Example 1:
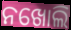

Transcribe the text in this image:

ନଖୋଲି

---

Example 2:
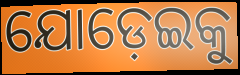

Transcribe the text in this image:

ଯୋଡ଼େଇକୁ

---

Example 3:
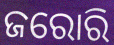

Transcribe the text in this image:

ଜରୋରି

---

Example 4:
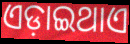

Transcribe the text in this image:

ଏଡ଼ାଇଥାଏ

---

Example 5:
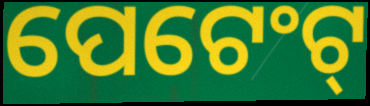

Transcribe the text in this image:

ପେଟେଂଟ୍